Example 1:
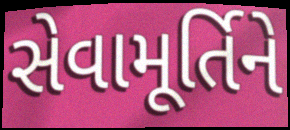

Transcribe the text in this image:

સેવામૂર્તિને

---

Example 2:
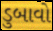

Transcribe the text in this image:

ડુબાવો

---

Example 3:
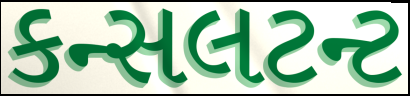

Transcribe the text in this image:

કન્સલટન્ટ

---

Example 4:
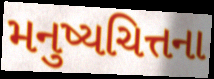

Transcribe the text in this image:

મનુષ્યચિત્તના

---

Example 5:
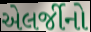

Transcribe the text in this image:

એલર્જીનો